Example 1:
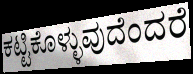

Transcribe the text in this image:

ಕಟ್ಟಿಕೊಳ್ಳುವುದೆಂದರೆ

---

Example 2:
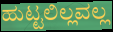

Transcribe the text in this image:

ಹುಟ್ಟಲಿಲ್ಲವಲ್ಲ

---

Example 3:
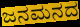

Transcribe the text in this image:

ಜನಮನದ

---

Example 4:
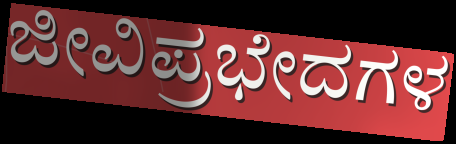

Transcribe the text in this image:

ಜೀವಿಪ್ರಭೇದಗಳ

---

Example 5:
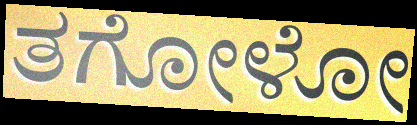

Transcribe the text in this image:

ತಗೋಳೋ